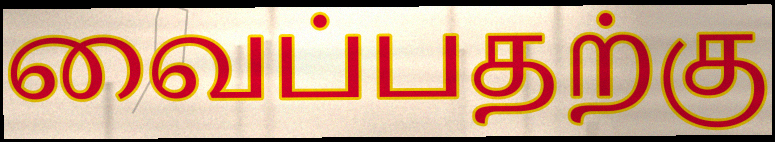
வைப்பதற்கு